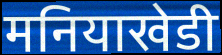
मनियाखेडी